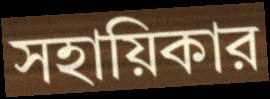
সহায়িকার